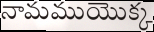
నామముయొక్క